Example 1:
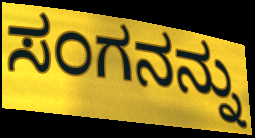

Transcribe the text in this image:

ಸಂಗನನ್ನು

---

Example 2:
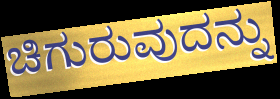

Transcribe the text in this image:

ಚಿಗುರುವುದನ್ನು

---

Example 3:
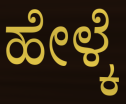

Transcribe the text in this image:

ಹೇಳ್ಕೆ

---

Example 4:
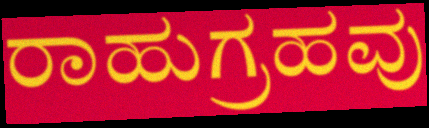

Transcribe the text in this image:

ರಾಹುಗ್ರಹವು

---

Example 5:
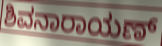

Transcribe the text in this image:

ಶಿವನಾರಾಯಣ್